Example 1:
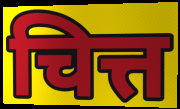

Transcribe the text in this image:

चित्त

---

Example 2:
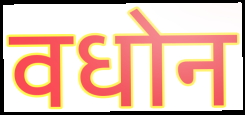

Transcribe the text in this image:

वधोन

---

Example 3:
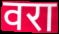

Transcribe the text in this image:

वरा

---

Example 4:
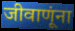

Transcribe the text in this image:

जीवाणूंना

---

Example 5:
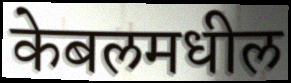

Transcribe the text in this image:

केबलमधील